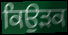
ਕਿਉੜਕ